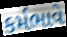
કર્મભાવે